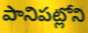
పానిపట్లోని